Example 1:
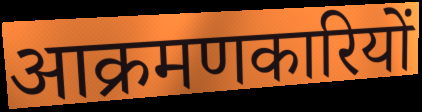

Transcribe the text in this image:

आक्रमणकारियों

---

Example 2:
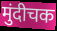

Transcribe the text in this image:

मुंदीचक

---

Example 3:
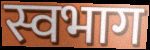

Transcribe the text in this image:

स्वभाग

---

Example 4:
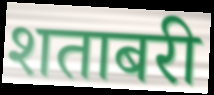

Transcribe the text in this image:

शताबरी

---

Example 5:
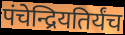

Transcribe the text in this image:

पंचेन्द्रियतिर्यंच